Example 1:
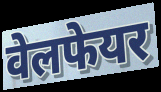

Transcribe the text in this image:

वेलफेयर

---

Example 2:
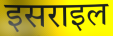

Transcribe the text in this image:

इसराइल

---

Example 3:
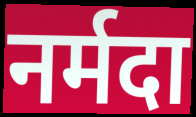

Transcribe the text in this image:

नर्मदा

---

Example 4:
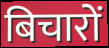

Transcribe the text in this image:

बिचारों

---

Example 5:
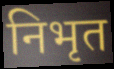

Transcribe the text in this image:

निभृत